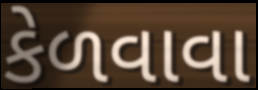
કેળવાવા